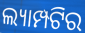
ଲ୍ୟାମ୍ପଟିର